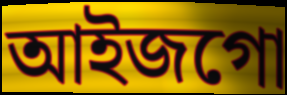
আইজগো